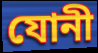
যোনী